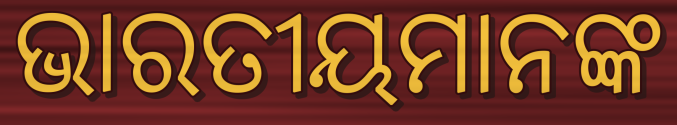
ଭାରତୀୟମାନଙ୍କ